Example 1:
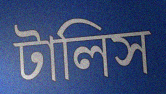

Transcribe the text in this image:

টালিস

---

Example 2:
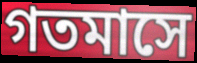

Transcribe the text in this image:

গতমাসে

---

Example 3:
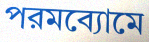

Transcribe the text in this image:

পরমব্যোমে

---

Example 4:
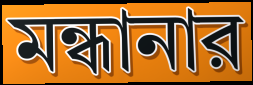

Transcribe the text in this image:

মন্ধানার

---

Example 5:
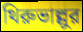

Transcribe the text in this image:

থিরুভাল্লুর